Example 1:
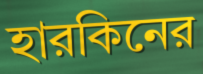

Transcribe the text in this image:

হারকিনের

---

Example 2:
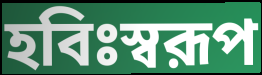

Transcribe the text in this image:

হবিঃস্বরূপ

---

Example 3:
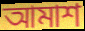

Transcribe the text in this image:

আমাশ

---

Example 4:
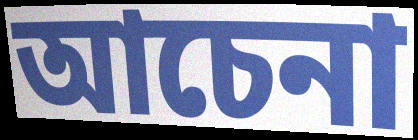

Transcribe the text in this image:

আচেনা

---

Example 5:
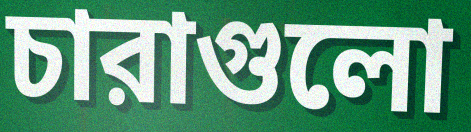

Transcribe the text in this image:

চারাগুলো